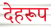
देहरूप